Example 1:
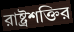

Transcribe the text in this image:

রাষ্ট্রশক্তির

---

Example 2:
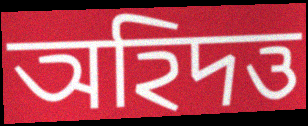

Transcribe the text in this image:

অহিদত্ত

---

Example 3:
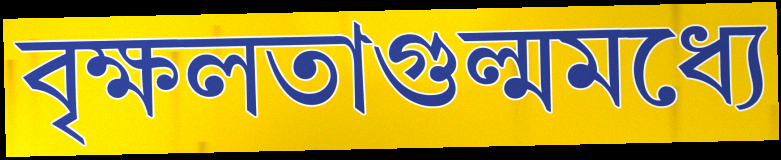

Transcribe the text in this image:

বৃক্ষলতাগুল্মমধ্যে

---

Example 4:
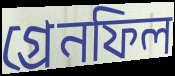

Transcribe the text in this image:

গ্রেনফিল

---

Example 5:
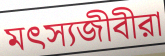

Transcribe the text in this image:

মৎস্যজীবীরা